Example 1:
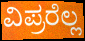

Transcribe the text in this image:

ವಿಪ್ರರೆಲ್ಲ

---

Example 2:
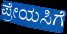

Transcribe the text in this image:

ಪ್ರೇಯಸಿಗೆ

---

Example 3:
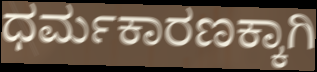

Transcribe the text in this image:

ಧರ್ಮಕಾರಣಕ್ಕಾಗಿ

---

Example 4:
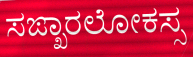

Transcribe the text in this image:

ಸಙ್ಖಾರಲೋಕಸ್ಸ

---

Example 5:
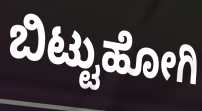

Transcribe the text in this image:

ಬಿಟ್ಟುಹೋಗಿ